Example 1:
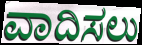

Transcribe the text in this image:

ವಾದಿಸಲು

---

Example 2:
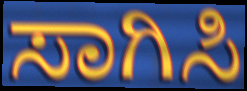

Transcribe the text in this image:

ಸಾಗಿಸಿ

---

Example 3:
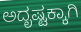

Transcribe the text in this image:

ಅದೃಷ್ಟಕ್ಕಾಗಿ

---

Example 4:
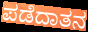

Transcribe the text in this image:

ಪಡೆದಾತನ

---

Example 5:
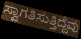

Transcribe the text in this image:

ಸ್ವಾಗತಿಸುತ್ತಿದ್ದೆವು